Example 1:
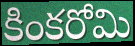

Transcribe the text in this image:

కింకరోమి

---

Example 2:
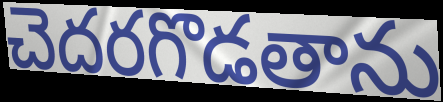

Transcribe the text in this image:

చెదరగొడతాను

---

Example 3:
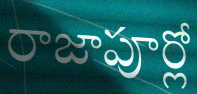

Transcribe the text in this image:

రాజాపూర్లో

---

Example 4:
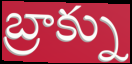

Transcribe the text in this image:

బ్రాక్ను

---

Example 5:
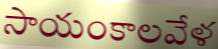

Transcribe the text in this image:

సాయంకాలవేళ